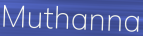
Muthanna